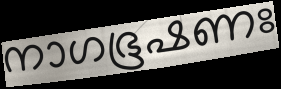
നാഗഭൂഷണഃ